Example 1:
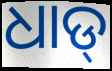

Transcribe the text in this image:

ଧାଡ୍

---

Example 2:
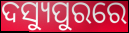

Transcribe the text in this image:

ଦସ୍ୟୁପୁରରେ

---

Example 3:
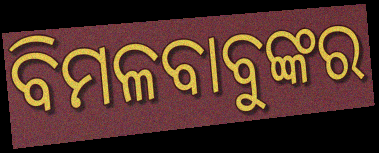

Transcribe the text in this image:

ବିମଳବାବୁଙ୍କର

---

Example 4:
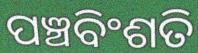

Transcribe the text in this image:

ପଞ୍ଚବିଂଶତି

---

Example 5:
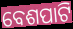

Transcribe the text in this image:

ବେଶପାଟି